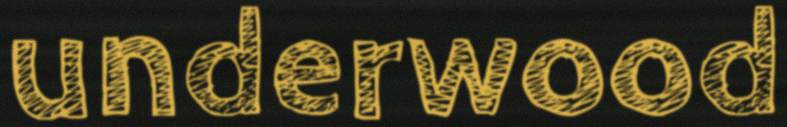
underwood